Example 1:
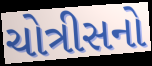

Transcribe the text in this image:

ચોત્રીસનો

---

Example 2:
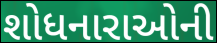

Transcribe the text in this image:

શોધનારાઓની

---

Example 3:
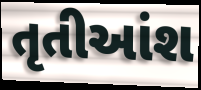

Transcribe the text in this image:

તૃતીઆંશ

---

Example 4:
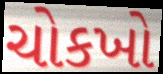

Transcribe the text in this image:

ચોકખો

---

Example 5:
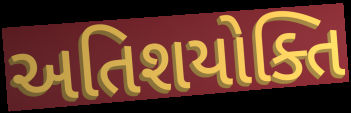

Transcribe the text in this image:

અતિશયોક્તિ